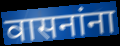
वासनांना